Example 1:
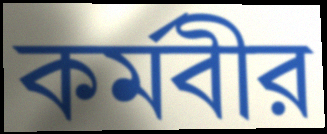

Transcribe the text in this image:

কর্মবীর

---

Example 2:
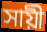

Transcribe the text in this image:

সায়ী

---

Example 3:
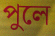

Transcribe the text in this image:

পুলে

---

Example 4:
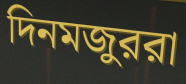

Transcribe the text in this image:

দিনমজুররা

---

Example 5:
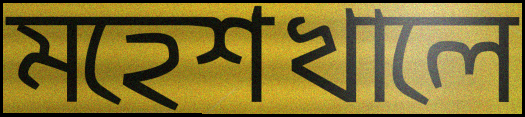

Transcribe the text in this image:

মহেশখালে